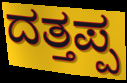
ದತ್ತಪ್ಪ